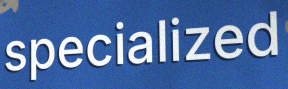
specialized